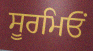
ਸੂਰਮਿਓਂ